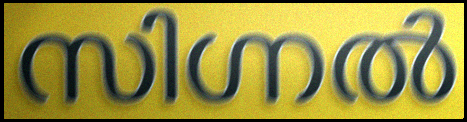
സിഗ്നൽ